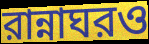
রান্নাঘরও